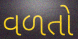
વળતો